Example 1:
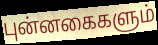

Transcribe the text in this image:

புன்னகைகளும்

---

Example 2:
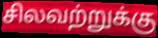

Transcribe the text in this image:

சிலவற்றுக்கு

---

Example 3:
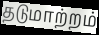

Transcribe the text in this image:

தடுமாற்றம்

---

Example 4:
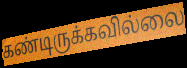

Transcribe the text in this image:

கண்டிருக்கவில்லை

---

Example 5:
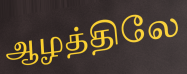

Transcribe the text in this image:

ஆழத்திலே